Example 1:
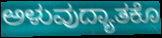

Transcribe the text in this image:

ಅಳುವುದ್ಯಾತಕೊ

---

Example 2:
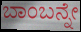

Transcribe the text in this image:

ಬಾಂಬನ್ನೇ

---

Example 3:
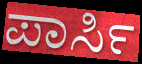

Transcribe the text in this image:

ಪಾರ್ಸಿ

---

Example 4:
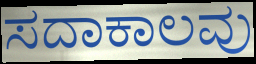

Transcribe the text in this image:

ಸದಾಕಾಲವು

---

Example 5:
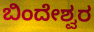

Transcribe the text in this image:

ಬಿಂದೇಶ್ವರ